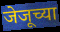
जेजूच्या